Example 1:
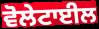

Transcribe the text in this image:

ਵੋਲੇਟਾਈਲ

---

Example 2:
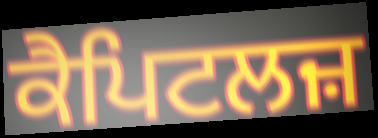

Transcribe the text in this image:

ਕੈਪਿਟਲਜ਼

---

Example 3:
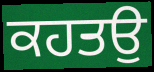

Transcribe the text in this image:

ਕਹਤਉ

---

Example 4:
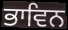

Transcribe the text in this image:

ਭਾਵਿਨ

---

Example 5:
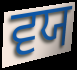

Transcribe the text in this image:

ਵਯ